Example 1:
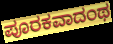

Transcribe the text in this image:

ಪೂರಕವಾದಂಥ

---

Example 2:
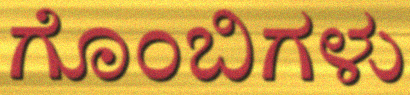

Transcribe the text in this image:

ಗೊಂಬಿಗಳು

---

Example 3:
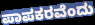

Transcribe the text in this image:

ಪಾಪಕರವೆಂದು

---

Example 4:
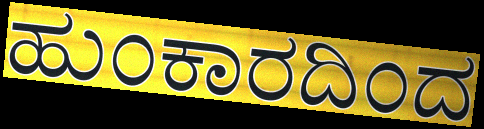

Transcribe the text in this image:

ಹುಂಕಾರದಿಂದ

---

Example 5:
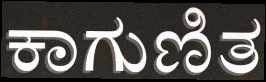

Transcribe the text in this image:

ಕಾಗುಣಿತ